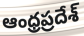
ఆంధ్రప్రదేశ్